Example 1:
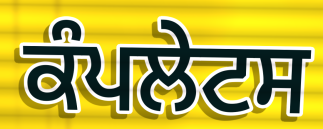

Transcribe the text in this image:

ਕੰਪਲੇਟਸ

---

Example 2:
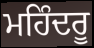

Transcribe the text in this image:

ਮਹਿੰਦਰੂ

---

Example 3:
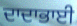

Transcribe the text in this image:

ਦਾਦਾਭਾਈ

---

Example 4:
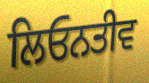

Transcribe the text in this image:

ਲਿਓਨਤੀਵ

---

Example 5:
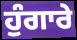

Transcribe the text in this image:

ਹੁੰਗਾਰੇ